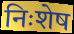
निःशेष